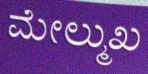
ಮೇಲ್ಮುಖ